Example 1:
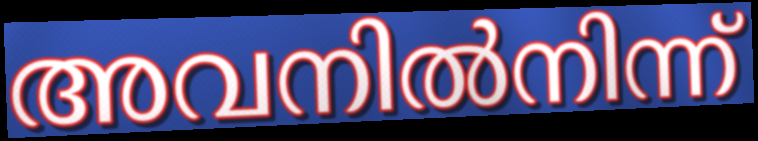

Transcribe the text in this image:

അവനിൽനിന്ന്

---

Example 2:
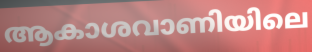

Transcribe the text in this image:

ആകാശവാണിയിലെ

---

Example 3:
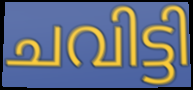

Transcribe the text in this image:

ചവിട്ടി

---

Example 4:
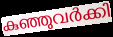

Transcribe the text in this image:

കുഞ്ഞുവർക്കി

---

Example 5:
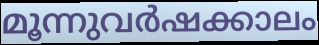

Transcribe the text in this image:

മൂന്നുവർഷക്കാലം